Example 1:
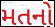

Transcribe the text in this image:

મતનો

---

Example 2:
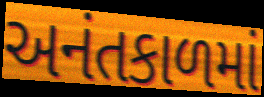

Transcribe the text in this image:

અનંતકાળમાં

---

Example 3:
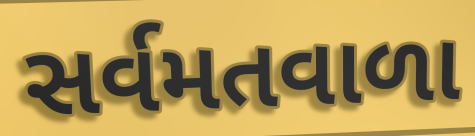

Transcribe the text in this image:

સર્વમતવાળા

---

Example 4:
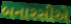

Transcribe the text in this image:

બનારસીએ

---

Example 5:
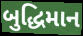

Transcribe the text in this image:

બુદ્ધિમાન